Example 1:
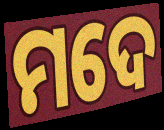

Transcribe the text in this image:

ମଦେ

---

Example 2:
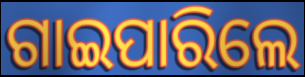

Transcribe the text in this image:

ଗାଇପାରିଲେ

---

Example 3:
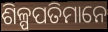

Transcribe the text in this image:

ଶିଳ୍ପପତିମାନେ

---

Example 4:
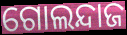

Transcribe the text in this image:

ଗୋଲନ୍ଦାଜ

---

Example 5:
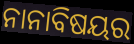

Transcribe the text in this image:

ନାନାବିଷୟର